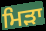
ਮਿੜਾ